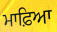
ਮਾਫ਼ਿਆ